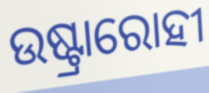
ଉଷ୍ଟ୍ରାରୋହୀ